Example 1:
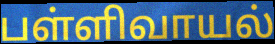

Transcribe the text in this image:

பள்ளிவாயல்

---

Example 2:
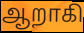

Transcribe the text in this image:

ஆறாகி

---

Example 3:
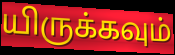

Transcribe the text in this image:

யிருக்கவும்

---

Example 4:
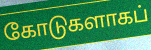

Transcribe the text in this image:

கோடுகளாகப்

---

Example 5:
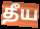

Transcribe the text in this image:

தீய